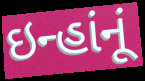
ઇન્હાંનૂં